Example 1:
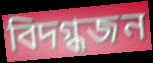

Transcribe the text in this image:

বিদগ্ধজন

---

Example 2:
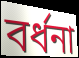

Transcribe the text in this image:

বর্ধনা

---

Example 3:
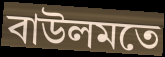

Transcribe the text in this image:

বাউলমতে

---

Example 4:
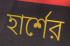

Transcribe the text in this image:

হার্শের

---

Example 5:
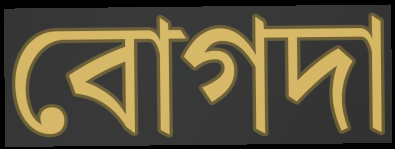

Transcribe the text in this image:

বোগদা